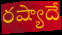
రష్యాదే